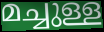
മച്ചുള്ള